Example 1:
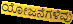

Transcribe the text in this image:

ಯೋಜನೆಗಳಿವು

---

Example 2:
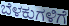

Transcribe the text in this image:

ಬೆಳಕುಗಳಿಗೆ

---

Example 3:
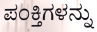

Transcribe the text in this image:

ಪಂಕ್ತಿಗಳನ್ನು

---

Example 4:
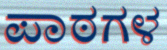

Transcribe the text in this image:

ಪಾಠಗಳ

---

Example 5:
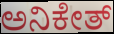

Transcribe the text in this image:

ಅನಿಕೇತ್